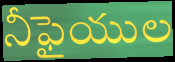
నీఫైయుల